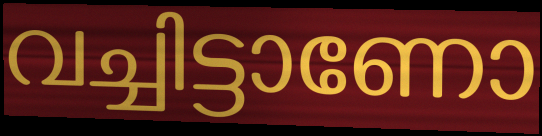
വച്ചിട്ടാണോ